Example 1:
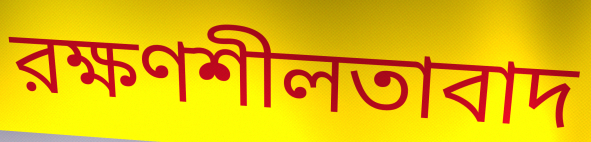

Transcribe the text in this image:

রক্ষণশীলতাবাদ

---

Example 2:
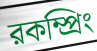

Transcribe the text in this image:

রকম্প্রিং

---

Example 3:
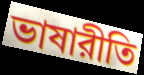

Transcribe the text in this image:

ভাষারীতি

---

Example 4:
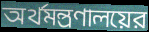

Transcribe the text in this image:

অর্থমন্ত্রণালয়ের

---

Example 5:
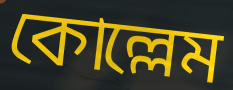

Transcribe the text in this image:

কোল্লেম